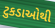
ટુકડાઓથી